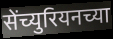
सेंच्युरियनच्या